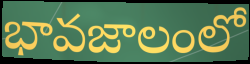
భావజాలంలో